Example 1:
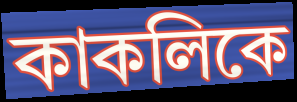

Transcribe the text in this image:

কাকলিকে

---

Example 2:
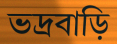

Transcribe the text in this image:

ভদ্রবাড়ি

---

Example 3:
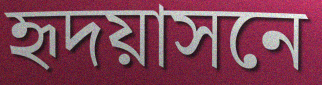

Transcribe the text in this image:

হৃদয়াসনে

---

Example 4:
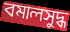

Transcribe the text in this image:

বমালসুদ্ধ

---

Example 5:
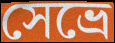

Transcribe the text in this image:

সেভ্রে